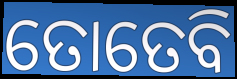
ତୋତେବି